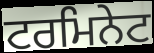
ਟਰਮਿਨੇਟ